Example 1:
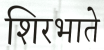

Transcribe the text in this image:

शिरभाते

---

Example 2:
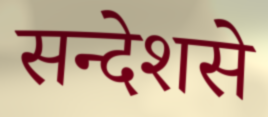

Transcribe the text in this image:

सन्देशसे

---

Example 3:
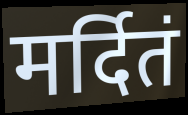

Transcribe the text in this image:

मर्दितं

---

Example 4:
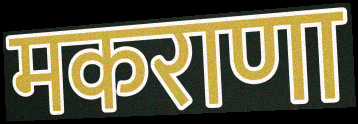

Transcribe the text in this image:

मकराणा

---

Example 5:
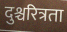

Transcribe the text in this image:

दुश्चरित्रता